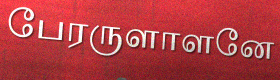
பேரருளாளனே